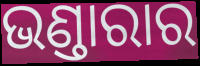
ଭଣ୍ଡାରାର